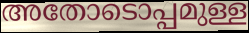
അതോടൊപ്പമുള്ള